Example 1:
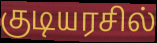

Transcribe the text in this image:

குடியரசில்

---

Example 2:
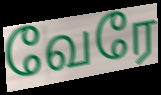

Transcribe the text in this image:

வேரே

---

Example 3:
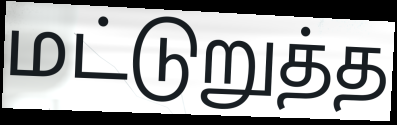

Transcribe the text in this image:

மட்டுறுத்த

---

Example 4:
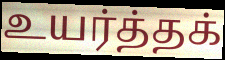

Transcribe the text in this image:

உயர்த்தக்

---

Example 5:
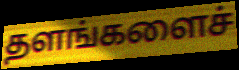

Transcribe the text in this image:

தளங்களைச்